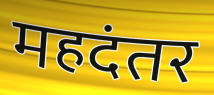
महदंतर